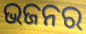
ଭଜନର